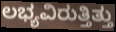
ಲಭ್ಯವಿರುತ್ತಿತ್ತು